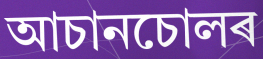
আচানচোলৰ